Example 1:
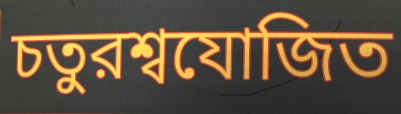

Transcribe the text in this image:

চতুরশ্বযোজিত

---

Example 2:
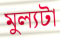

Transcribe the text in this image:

মুল্যটা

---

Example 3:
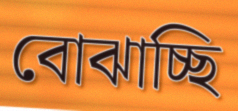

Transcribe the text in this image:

বোঝাচ্ছি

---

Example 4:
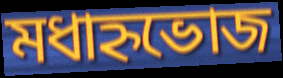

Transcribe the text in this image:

মধাহ্নভোজ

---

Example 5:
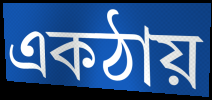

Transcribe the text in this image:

একঠায়